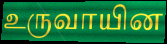
உருவாயின